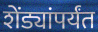
शेंड्यांपर्यंत